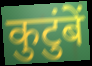
कुटुंबें